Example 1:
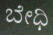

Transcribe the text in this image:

ಬೇಧಿ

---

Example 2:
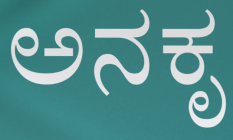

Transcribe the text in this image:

ಅನಕೃ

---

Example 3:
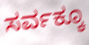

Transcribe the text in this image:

ಸರ್ವಕ್ಕೂ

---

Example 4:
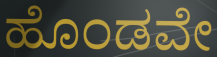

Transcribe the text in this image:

ಹೊಂಡವೇ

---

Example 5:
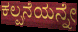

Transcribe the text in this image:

ಕಲ್ಪನೆಯನ್ನೇ